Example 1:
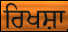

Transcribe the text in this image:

ਰਿਖਸ਼ਾ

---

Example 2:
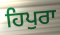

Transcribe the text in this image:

ਹਿਪੁਰਾ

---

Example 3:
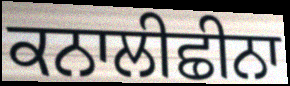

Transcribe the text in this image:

ਕਨਾਲੀਛੀਨਾ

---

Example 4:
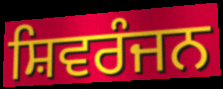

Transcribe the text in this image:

ਸ਼ਿਵਰੰਜਨ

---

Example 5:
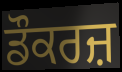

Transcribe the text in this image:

ਡੌਕਰਜ਼